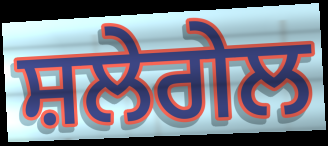
ਸ਼ਲੇਗੇਲ